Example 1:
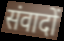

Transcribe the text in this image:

संवादों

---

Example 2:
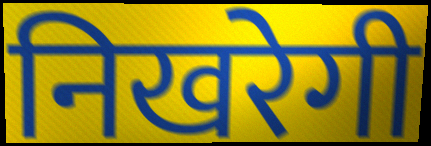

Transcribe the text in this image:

निखरेगी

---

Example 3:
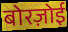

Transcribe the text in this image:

बोरज़ोई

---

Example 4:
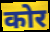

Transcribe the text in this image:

कोर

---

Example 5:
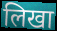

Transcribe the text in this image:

लिखा